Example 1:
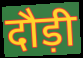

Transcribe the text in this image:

दौड़ी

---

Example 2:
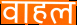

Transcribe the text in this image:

वाहल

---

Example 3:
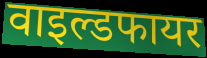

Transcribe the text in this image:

वाइल्डफायर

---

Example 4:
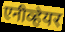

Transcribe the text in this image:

एनीव्हेयर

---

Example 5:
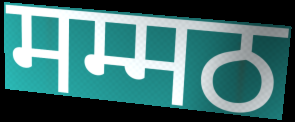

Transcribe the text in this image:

मम्मठ